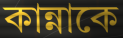
কান্নাকে